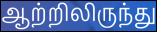
ஆற்றிலிருந்து